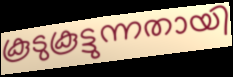
കൂടുകൂട്ടുന്നതായി